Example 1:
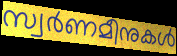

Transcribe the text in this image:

സ്വർണമീനുകൾ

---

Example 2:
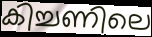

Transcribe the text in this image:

കിച്ചണിലെ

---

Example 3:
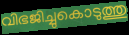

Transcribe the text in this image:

വിഭജിച്ചുകൊടുത്തു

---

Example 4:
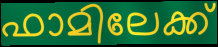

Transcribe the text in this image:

ഫാമിലേക്ക്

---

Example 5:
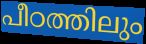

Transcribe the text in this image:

പീഠത്തിലും